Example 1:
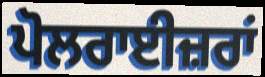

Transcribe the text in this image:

ਪੋਲਰਾਈਜ਼ਰਾਂ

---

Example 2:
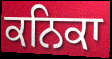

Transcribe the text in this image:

ਕਨਿਕਾ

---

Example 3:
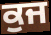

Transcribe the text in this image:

ਕੁਜ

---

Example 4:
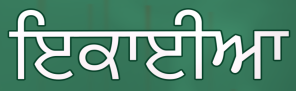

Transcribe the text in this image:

ਇਕਾਈਆ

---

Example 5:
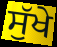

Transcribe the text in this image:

ਸੁੱਖੇ